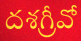
దశగ్రీవో